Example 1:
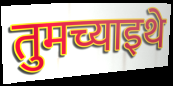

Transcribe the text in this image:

तुमच्याइथे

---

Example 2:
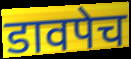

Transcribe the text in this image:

डावपेच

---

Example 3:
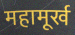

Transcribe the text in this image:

महामूर्ख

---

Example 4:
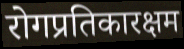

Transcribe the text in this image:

रोगप्रतिकारक्षम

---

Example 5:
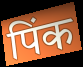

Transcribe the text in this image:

पिंक